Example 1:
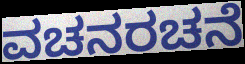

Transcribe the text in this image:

ವಚನರಚನೆ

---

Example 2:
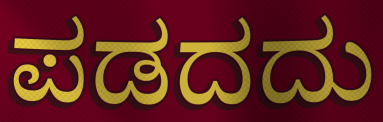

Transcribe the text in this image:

ಪಡದದು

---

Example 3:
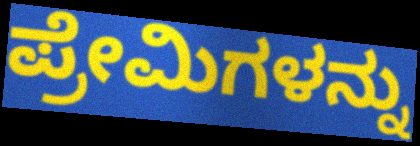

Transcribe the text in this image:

ಪ್ರೇಮಿಗಳನ್ನು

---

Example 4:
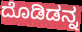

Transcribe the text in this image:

ದೊಡಿಡನ್ನ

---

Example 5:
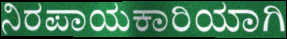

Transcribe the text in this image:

ನಿರಪಾಯಕಾರಿಯಾಗಿ